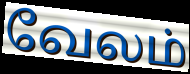
வேலம்